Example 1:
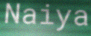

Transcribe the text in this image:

Naiya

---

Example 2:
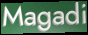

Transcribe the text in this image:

Magadi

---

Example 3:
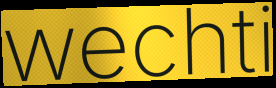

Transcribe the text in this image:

wechti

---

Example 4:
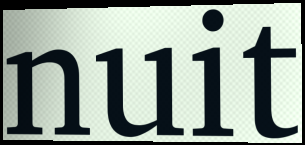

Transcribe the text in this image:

nuit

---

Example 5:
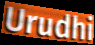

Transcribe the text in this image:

Urudhi